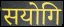
सयोगि